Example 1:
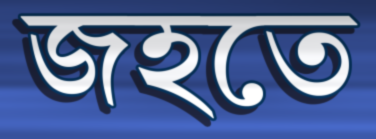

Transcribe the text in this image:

জহতে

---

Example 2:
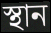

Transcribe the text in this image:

স্থান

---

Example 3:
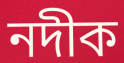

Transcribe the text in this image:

নদীক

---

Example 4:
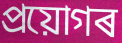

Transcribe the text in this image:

প্ৰয়োগৰ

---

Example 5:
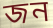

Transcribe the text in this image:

জন